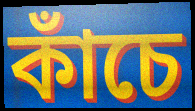
কাঁচে